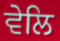
ਵੇਲਿ